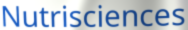
Nutrisciences